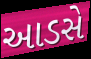
આડસે